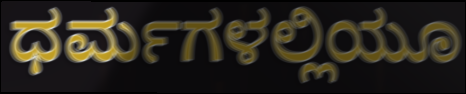
ಧರ್ಮಗಳಲ್ಲಿಯೂ